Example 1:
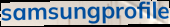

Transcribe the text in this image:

samsungprofile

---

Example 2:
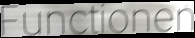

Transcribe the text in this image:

Functionen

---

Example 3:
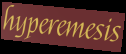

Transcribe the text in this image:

hyperemesis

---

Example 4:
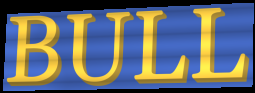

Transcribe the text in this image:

BULL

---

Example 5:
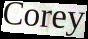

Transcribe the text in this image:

Corey